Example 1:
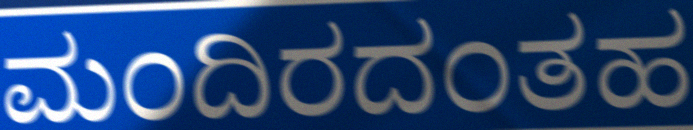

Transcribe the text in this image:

ಮಂದಿರದಂತಹ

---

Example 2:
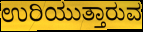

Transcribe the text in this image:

ಉರಿಯುತ್ತಾರುವ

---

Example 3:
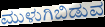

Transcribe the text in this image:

ಮುಳುಗಿಬಿಡುವ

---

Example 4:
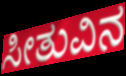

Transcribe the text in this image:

ಸೀತುವಿನ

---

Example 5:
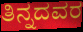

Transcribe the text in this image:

ತಿನ್ನದವರ